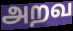
அறவ